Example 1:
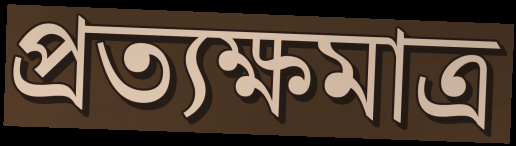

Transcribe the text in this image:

প্রত্যক্ষমাত্র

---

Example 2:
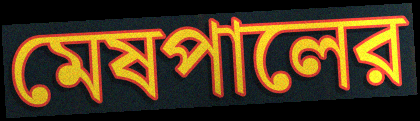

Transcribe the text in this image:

মেষপালের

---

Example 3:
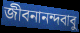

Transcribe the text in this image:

জীবনানন্দবাবু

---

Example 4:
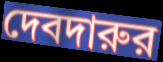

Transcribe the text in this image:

দেবদারুর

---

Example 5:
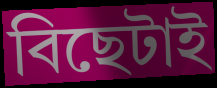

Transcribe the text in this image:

বিছেটাই